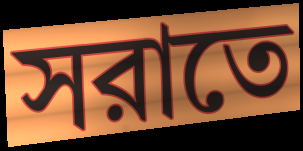
সরাতে